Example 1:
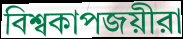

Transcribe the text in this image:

বিশ্বকাপজয়ীরা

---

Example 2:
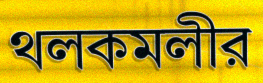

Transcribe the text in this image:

থলকমলীর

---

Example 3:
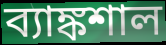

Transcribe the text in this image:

ব্যাঙ্কশাল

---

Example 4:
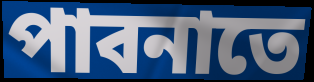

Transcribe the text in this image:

পাবনাতে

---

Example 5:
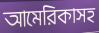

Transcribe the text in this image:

আমেরিকাসহ